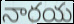
నారయ